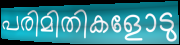
പരിമിതികളോടു